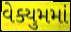
વેક્યુમમાં